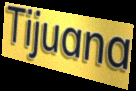
Tijuana